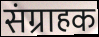
संग्राहक